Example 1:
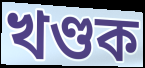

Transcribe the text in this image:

খণ্ডক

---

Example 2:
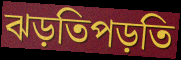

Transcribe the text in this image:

ঝড়তিপড়তি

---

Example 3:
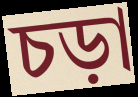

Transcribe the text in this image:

চড়া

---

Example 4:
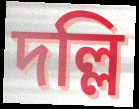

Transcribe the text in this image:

দল্লি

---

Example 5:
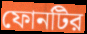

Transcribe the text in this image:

ফোনটির